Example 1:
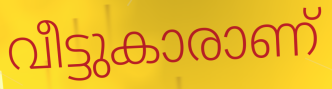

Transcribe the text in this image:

വീട്ടുകാരാണ്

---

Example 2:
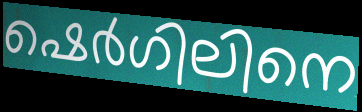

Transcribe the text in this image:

ഷെർഗിലിനെ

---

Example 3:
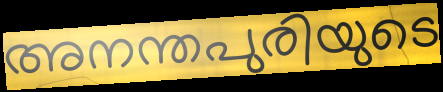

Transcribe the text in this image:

അനന്തപുരിയുടെ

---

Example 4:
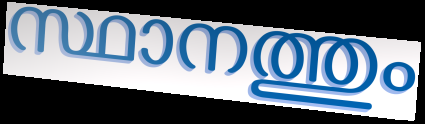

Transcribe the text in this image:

സ്ഥാനത്തും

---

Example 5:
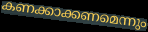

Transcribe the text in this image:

കണക്കാക്കണമെന്നും